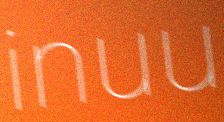
inuu